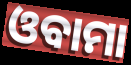
ଓବାମା